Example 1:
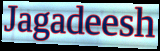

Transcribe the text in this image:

Jagadeesh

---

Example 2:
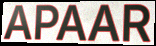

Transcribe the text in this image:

APAAR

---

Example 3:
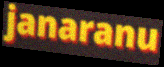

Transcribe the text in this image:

janaranu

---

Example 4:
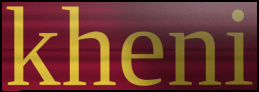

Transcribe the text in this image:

kheni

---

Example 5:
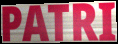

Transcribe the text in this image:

PATRI